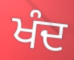
ਖੰਦ